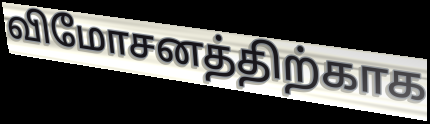
விமோசனத்திற்காக